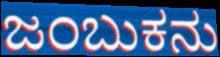
ಜಂಬುಕನು